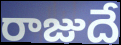
రాజుదే